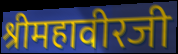
श्रीमहावीरजी